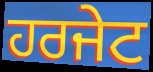
ਹਰਜੇਟ